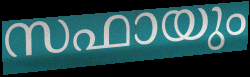
സഫായും